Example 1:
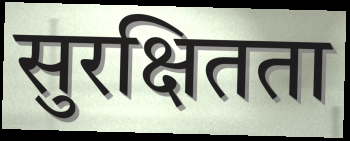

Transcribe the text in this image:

सुरक्षितता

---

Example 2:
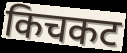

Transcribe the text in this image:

किचकट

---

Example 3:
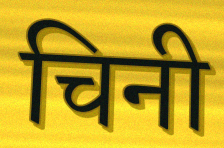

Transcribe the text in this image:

चिनी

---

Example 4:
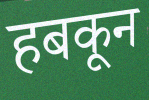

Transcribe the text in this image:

हबकून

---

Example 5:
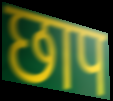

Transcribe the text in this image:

छाप